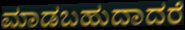
ಮಾಡಬಹುದಾದರೆ